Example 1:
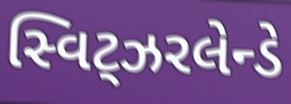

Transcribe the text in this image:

સ્વિટ્ઝરલેન્ડે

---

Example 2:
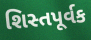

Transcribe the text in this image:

શિસ્તપૂર્વક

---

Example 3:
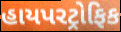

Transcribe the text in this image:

હાયપરટ્રોફિક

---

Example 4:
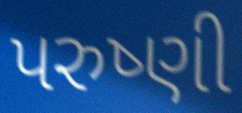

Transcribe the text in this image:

પરુષ્ણી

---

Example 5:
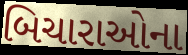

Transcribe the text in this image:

બિચારાઓના